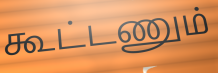
கூட்டணும்